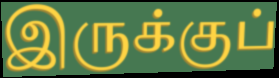
இருக்குப்